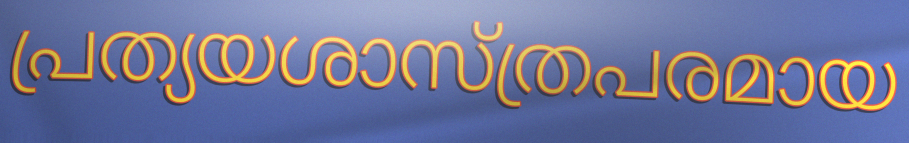
പ്രത്യയശാസ്ത്രപരമായ